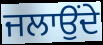
ਜਲਾਉਂਦੇ